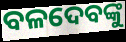
ବଳଦେବଙ୍କୁ